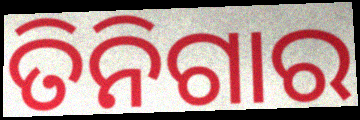
ତିନିଗାର